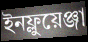
ইনফ্লুয়েঞ্জা